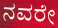
ನವರೇ